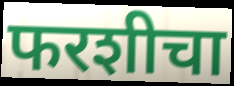
फरशीचा